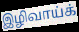
இழிவாய்க்